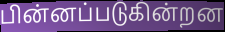
பின்னப்படுகின்றன